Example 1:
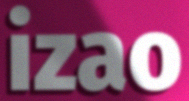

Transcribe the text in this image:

izao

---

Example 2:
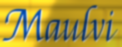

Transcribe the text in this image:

Maulvi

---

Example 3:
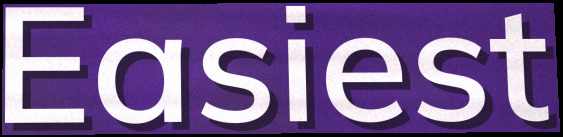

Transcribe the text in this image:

Easiest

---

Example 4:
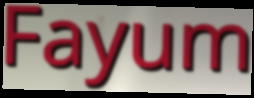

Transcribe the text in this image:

Fayum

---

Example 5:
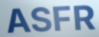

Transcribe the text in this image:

ASFR